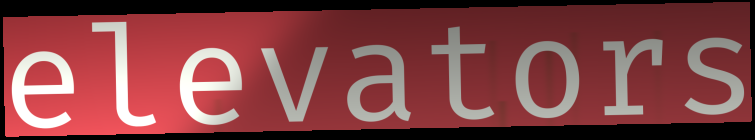
elevators